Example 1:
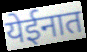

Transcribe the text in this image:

येईनात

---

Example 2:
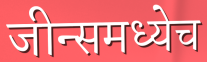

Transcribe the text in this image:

जीन्समध्येच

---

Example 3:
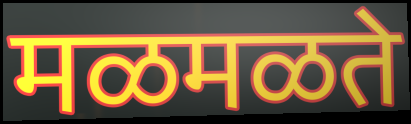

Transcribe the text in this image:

मळमळते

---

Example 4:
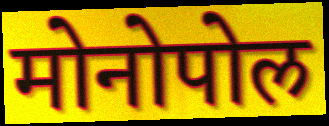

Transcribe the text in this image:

मोनोपोल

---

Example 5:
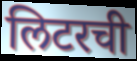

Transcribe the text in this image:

लिटरची